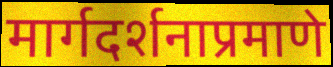
मार्गदर्शनाप्रमाणे